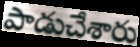
పాడుచేశారు